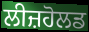
ਲੀਜ਼ਹੋਲਡ